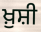
ਖ਼ੁਸ਼ੀ